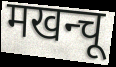
मखन्चू